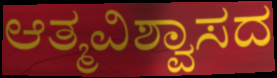
ಆತ್ಮವಿಶ್ವಾಸದ